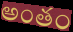
అంతం